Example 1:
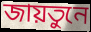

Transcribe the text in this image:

জায়তুনে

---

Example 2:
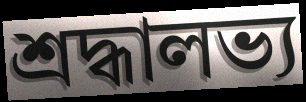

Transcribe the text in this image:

শ্রদ্ধালভ্য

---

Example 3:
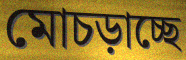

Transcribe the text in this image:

মোচড়াচ্ছে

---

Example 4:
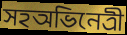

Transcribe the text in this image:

সহঅভিনেত্রী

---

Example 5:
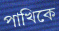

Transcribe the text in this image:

পাখিকে